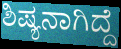
ಶಿಷ್ಯನಾಗಿದ್ದೆ